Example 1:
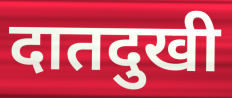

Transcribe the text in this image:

दातदुखी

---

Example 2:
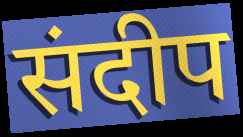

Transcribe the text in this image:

संदीप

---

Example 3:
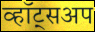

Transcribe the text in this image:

व्हॉट्सअप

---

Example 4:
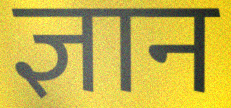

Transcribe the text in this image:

ज्ञान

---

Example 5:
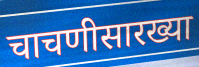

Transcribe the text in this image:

चाचणीसारख्या